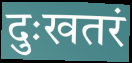
दुःखतरं